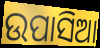
ଉପାସିଆ